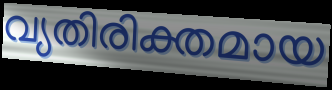
വ്യതിരിക്തമായ